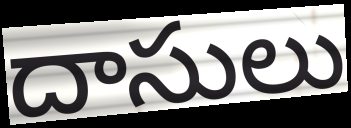
దాసులు